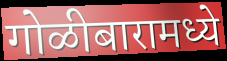
गोळीबारामध्ये